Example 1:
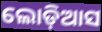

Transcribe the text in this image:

ଲୋଡ଼ିଆସ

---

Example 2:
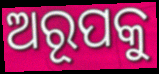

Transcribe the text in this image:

ଅରୂପକୁ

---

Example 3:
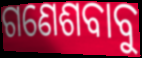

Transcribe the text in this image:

ଗଣେଶବାବୁ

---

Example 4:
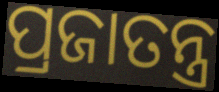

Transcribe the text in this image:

ପ୍ରଜାତନ୍ତ୍ର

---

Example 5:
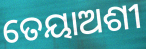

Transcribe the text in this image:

ତେୟାଅଶୀ